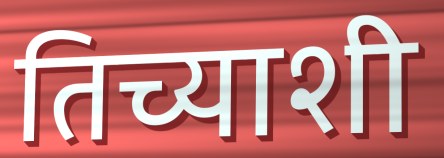
तिच्याशी